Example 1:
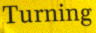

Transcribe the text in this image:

Turning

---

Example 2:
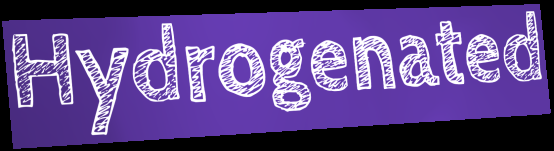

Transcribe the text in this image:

Hydrogenated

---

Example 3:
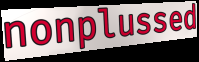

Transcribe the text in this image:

nonplussed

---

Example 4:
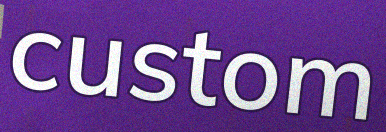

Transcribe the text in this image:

custom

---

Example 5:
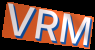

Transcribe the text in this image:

VRM